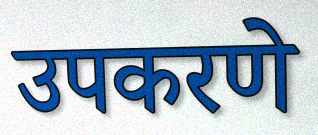
उपकरणे